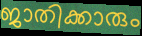
ജാതിക്കാരും